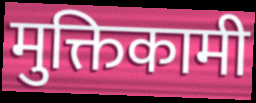
मुक्तिकामी